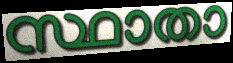
സ്ഥാതാ